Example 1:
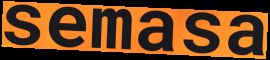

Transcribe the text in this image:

semasa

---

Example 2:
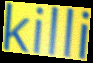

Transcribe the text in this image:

killi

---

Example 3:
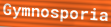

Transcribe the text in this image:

Gymnosporia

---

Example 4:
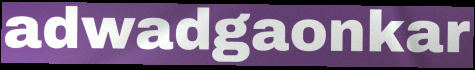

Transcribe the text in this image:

adwadgaonkar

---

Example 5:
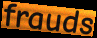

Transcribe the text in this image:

frauds